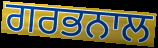
ਗਰਭਨਾਲ